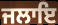
ਜਲਾਇ